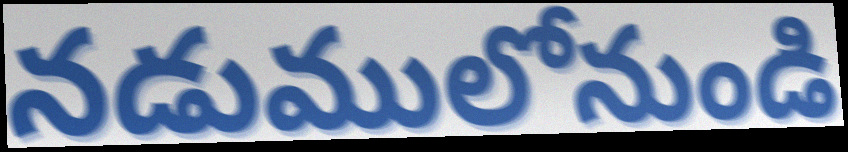
నడుములోనుండి